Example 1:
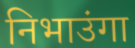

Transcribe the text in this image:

निभाउंगा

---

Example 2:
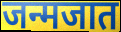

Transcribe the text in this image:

जन्मजात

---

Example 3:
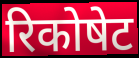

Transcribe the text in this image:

रिकोषेट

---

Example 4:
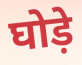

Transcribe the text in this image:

घोड़े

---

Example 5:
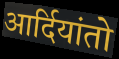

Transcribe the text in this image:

आर्दियांतो